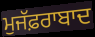
ਮੁਜੱਫ਼ਰਾਬਾਦ